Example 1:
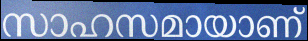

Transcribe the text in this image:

സാഹസമായാണ്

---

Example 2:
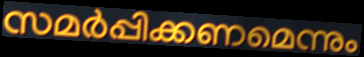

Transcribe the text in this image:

സമർപ്പിക്കണമെന്നും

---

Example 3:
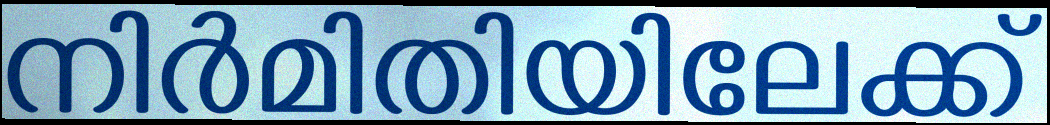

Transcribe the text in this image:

നിർമിതിയിലേക്ക്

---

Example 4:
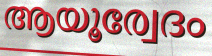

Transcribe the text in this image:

ആയൂര്വേദം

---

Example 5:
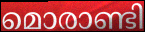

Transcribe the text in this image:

മൊരാണ്ടി